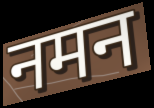
नमन